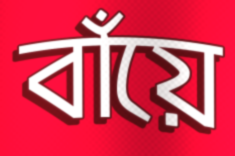
বাঁয়ে